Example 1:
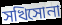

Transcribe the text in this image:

সখিসোনা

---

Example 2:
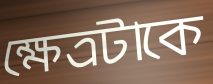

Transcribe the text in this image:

ক্ষেত্রটাকে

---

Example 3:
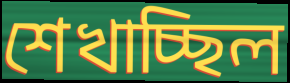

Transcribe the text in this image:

শেখাচ্ছিল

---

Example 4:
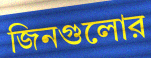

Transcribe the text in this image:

জিনগুলোর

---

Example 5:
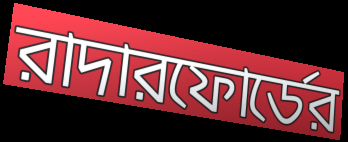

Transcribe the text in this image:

রাদারফোর্ডের